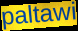
paltawi